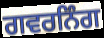
ਗਵਰਨਿੰਗ